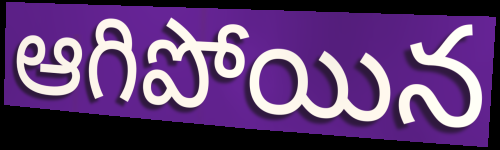
ఆగిపోయిన